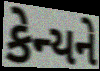
કેન્યને